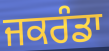
ਜਕਰੰਡਾ